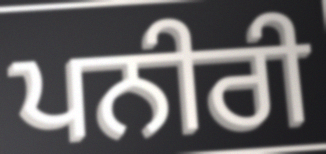
ਪਨੀਰੀ